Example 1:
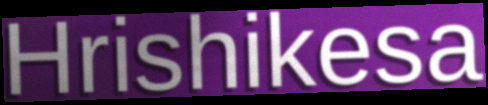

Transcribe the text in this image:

Hrishikesa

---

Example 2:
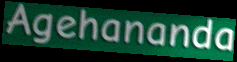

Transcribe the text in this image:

Agehananda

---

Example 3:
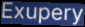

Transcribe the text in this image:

Exupery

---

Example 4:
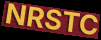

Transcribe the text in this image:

NRSTC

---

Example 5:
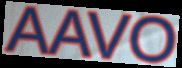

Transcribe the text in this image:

AAVO